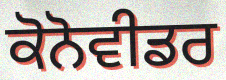
ਕੋਨੋਵੀਡਰ